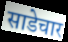
साडेचार